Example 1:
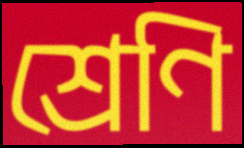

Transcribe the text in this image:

শ্রেণি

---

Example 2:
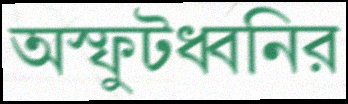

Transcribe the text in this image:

অস্ফুটধ্বনির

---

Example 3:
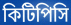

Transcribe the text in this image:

কিটিপিসি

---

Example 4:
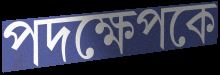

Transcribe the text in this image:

পদক্ষেপকে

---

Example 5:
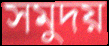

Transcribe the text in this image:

সমুদয়